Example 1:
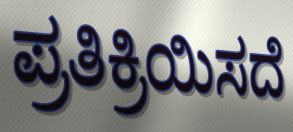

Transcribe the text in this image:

ಪ್ರತಿಕ್ರಿಯಿಸದೆ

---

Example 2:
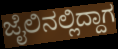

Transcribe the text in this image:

ಜೈಲಿನಲ್ಲಿದ್ದಾಗ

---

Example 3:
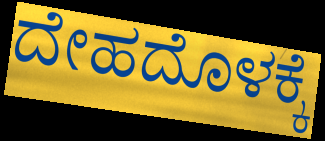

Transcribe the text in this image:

ದೇಹದೊಳಕ್ಕೆ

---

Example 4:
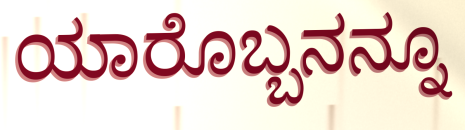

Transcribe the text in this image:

ಯಾರೊಬ್ಬನನ್ನೂ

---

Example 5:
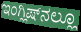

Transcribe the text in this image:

ಇಂಗ್ಲಿಷ್‌ನಲ್ಲೂ